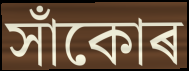
সাঁকোৰ